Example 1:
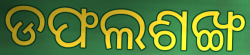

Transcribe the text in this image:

ଡଫଲଶଙ୍ଖ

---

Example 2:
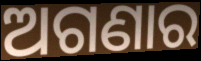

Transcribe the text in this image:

ଅଗଣାର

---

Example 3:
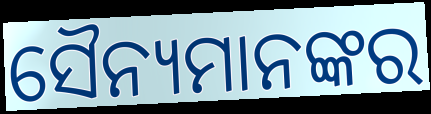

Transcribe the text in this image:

ସୈନ୍ୟମାନଙ୍କର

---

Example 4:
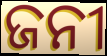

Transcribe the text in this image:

ଜନୀ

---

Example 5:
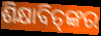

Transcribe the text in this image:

ଶିକ୍ଷାବିତ୍‌ଙ୍କର